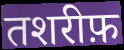
तशरीफ़